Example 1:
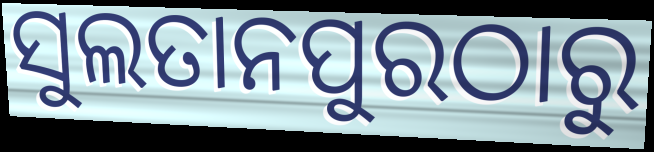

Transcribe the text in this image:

ସୁଲତାନପୁରଠାରୁ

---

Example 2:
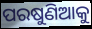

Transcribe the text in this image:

ପରଷୁଣିଆକୁ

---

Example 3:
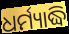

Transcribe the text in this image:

ଧର୍ମ୍ୟାଦ୍ଧି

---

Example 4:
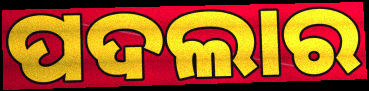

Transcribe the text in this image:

ପଦଲାର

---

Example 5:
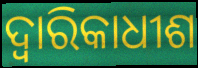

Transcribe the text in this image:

ଦ୍ୱାରିକାଧୀଶ